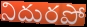
నిదురపో